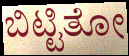
ಬಿಟ್ಟಿತೋ